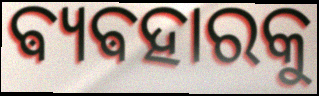
ଵ୍ୟଵହାରକୁ